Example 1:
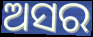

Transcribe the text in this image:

ଅସର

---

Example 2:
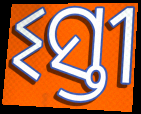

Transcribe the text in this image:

ଽସ୍ତୀ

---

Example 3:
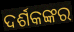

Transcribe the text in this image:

ଦର୍ଶକଙ୍କର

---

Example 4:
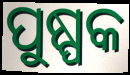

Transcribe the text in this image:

ପୁଷ୍ପକ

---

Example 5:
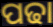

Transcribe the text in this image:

ପଢା